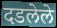
दडलेले